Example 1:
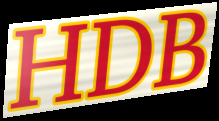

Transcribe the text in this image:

HDB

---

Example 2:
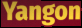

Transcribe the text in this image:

Yangon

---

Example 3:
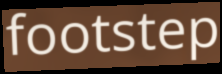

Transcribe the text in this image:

footstep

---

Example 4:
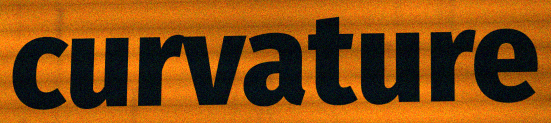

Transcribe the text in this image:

curvature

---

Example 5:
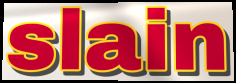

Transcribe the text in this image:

slain